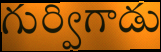
గుర్విగాడు